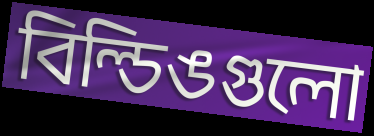
বিল্ডিঙগুলো